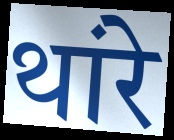
थांरे